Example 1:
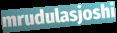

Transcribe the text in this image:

mrudulasjoshi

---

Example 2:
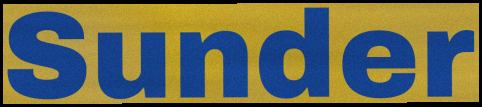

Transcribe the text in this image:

Sunder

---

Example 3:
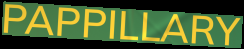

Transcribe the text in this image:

PAPPILLARY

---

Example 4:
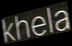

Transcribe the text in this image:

khela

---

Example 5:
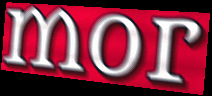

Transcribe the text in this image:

mor